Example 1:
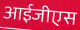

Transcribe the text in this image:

आईजीएस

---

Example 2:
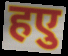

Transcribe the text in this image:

हएु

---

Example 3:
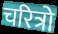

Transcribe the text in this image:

चरित्रो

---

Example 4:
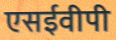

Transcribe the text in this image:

एसईवीपी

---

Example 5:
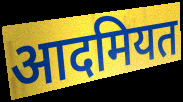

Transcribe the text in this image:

आदमियत